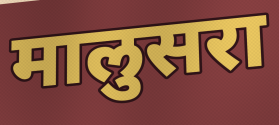
मालुसरा